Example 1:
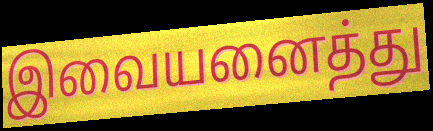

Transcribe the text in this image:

இவையனைத்து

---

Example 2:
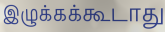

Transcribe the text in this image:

இழுக்கக்கூடாது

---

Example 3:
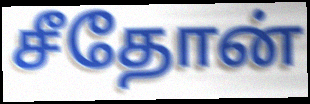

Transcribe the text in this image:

சீதோன்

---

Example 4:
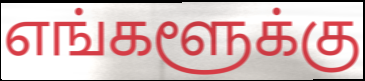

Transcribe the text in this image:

எங்களூக்கு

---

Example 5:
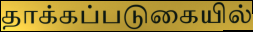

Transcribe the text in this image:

தாக்கப்படுகையில்